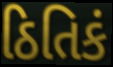
ઠિતિકં